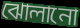
ঝোলানো